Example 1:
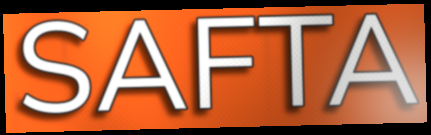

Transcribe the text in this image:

SAFTA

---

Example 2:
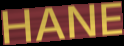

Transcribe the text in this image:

HANE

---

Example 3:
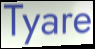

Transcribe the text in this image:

Tyare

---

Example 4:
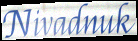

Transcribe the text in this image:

Nivadnuk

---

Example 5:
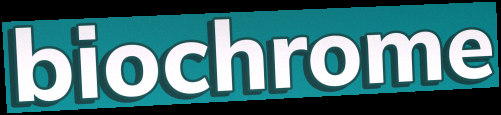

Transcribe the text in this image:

biochrome